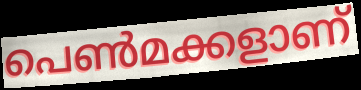
പെൺമക്കളാണ്